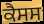
ਕੈਸਸ